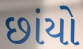
છાંયો